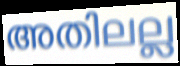
അതിലല്ല